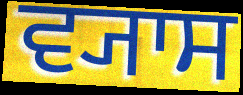
ਵ੍ਯਾਸ